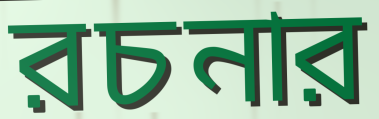
রচনার